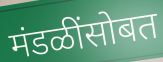
मंडळींसोबत